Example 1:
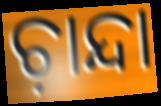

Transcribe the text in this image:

ଚ଼ାନ୍ଦା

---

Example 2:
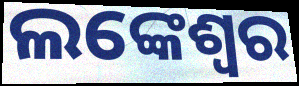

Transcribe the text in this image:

ଲଙ୍କେଶ୍ବର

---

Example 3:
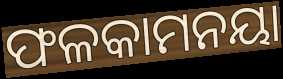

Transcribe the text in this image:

ଫଳକାମନୟା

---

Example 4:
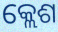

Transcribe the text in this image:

କ୍ଲେଶ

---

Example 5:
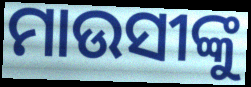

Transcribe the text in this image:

ମାଉସୀଙ୍କୁ